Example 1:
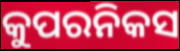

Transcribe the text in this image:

କୁପରନିକସ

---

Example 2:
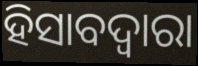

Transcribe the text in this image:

ହିସାବଦ୍ଵାରା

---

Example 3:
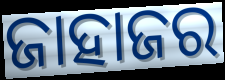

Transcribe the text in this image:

ଜାହାଜର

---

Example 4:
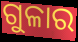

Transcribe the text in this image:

ଗୁଳାର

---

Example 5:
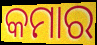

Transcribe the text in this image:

କମାର